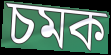
চমক